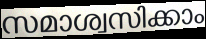
സമാശ്വസിക്കാം